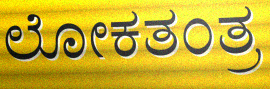
ಲೋಕತಂತ್ರ